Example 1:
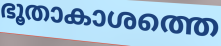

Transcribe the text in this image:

ഭൂതാകാശത്തെ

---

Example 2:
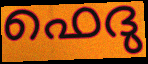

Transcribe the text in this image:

ഫെദു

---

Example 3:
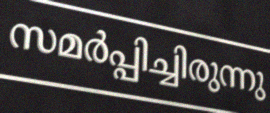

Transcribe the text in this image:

സമർപ്പിച്ചിരുന്നു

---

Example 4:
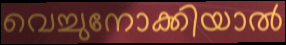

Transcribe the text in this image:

വെച്ചുനോക്കിയാൽ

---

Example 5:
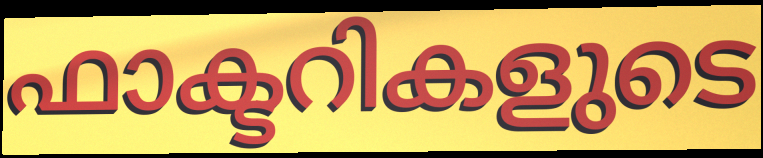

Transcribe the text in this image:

ഫാക്ടറികളുടെ